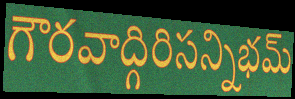
గౌరవాద్గిరిసన్నిభమ్